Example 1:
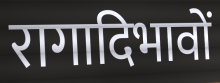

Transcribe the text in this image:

रागादिभावों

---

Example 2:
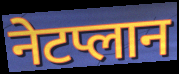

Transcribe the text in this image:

नेटप्लान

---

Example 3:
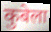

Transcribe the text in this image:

कुबेला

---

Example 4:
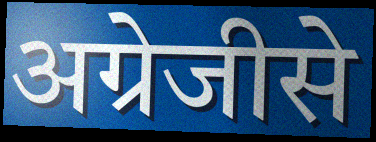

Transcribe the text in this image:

अग्रेजीसे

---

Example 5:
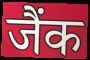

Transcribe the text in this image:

जैंक